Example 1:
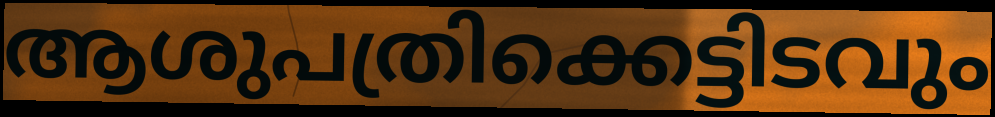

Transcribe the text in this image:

ആശുപത്രിക്കെട്ടിടവും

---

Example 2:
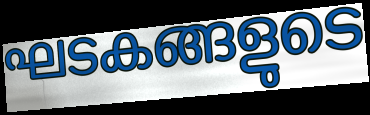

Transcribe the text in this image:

ഘടകങ്ങളുടെ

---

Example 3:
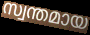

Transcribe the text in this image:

സ്വന്തമായ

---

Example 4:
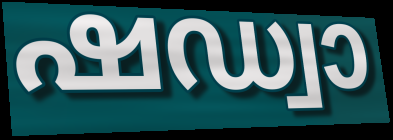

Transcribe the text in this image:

ഷഡ്വാ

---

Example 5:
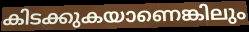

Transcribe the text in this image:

കിടക്കുകയാണെങ്കിലും